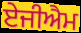
ਏਜੀਐਮ